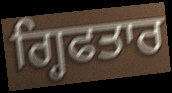
ਗ੍ਹਿਫਤਾਰ